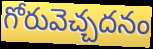
గోరువెచ్చదనం